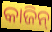
କାଜିନ୍